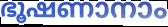
ഭൂഷണാനാം